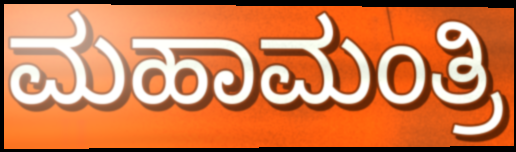
ಮಹಾಮಂತ್ರಿ